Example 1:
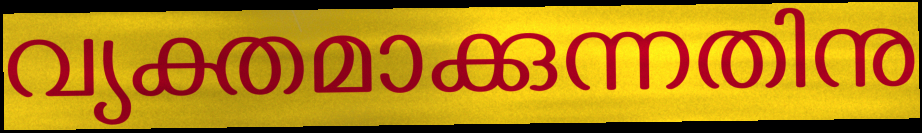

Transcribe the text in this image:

വ്യക്തമാക്കുന്നതിനു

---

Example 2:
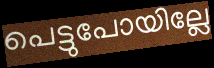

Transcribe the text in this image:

പെട്ടുപോയില്ലേ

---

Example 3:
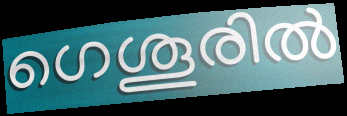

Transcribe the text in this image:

ഗെശൂരിൽ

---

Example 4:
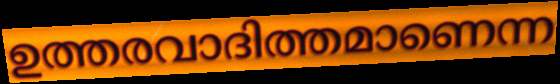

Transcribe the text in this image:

ഉത്തരവാദിത്തമാണെന്ന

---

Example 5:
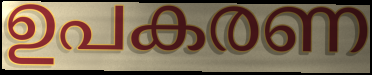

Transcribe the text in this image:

ഉപകരണ